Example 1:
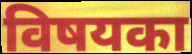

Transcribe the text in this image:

विषयका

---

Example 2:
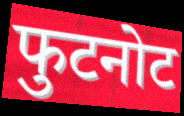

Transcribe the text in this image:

फुटनोट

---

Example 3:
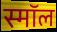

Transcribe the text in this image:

स्मॉल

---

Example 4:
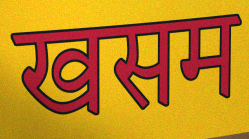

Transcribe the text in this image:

खसम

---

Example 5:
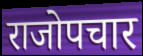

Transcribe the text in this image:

राजोपचार